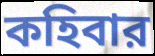
কহিবার